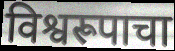
विश्वरूपाचा